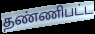
தண்ணிபட்ட